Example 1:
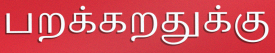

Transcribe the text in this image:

பறக்கறதுக்கு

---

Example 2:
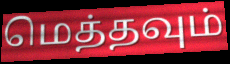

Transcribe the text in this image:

மெத்தவும்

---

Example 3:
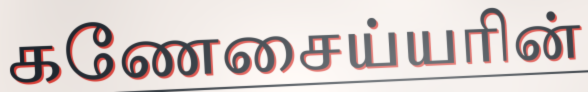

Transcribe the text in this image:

கணேசைய்யரின்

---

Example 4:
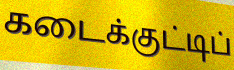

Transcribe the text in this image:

கடைக்குட்டிப்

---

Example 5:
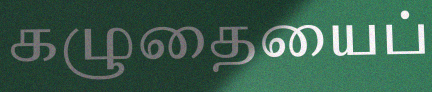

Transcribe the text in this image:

கழுதையைப்